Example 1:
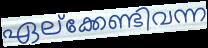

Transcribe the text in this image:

ഏല്ക്കേണ്ടിവന്ന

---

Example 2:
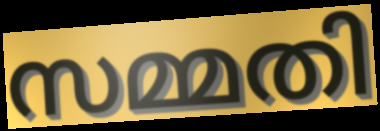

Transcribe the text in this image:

സമ്മതി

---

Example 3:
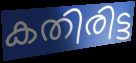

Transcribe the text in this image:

കതിരിട്ട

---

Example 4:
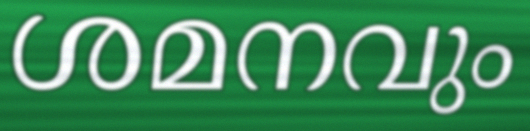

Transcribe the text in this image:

ശമനവും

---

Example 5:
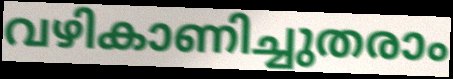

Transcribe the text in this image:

വഴികാണിച്ചുതരാം